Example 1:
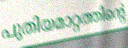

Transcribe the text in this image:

പുതിയമാറ്റത്തിന്റെ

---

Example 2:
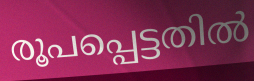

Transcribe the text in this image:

രൂപപ്പെട്ടതിൽ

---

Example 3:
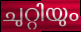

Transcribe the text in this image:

ചുറ്റിയും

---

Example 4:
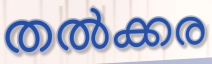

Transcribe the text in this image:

തൽക്കര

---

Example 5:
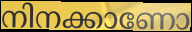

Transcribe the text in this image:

നിനക്കാണോ